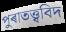
পুৰাতত্ত্ববিদ